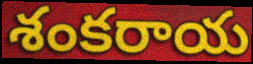
శంకరాయ